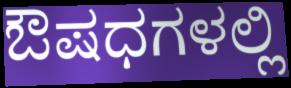
ಔಷಧಗಳಲ್ಲಿ